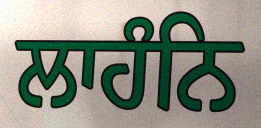
ਲਾਹੰਨਿ